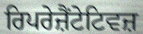
ਰਿਪਰੇਜ਼ੈਂਟੇਟਿਵਜ਼